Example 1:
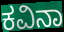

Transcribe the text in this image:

ಕವಿನಾ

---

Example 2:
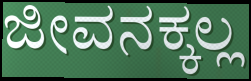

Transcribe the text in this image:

ಜೀವನಕ್ಕಲ್ಲ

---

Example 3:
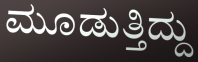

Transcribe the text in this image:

ಮೂಡುತ್ತಿದ್ದು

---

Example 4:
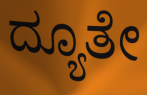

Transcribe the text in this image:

ದ್ಯೂತೇ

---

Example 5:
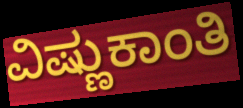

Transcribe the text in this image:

ವಿಷ್ಣುಕಾಂತಿ